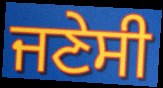
ਜਣੇਸੀ